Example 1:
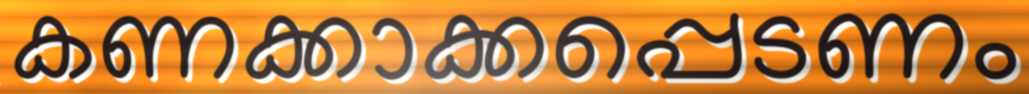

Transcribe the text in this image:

കണക്കാക്കപ്പെടണം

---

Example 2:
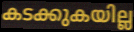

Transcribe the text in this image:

കടക്കുകയില്ല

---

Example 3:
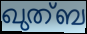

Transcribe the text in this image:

ഖുത്ബ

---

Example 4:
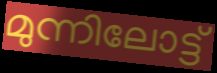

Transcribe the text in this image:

മുന്നിലോട്ട്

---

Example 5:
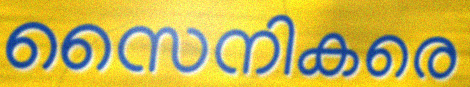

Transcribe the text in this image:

സൈനികരെ